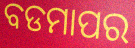
ବଡମାପର